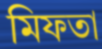
মিফতা